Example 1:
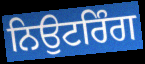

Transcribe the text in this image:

ਨਿਉਟਰਿੰਗ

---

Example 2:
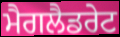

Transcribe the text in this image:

ਮੈਗਲੈਡਰੇਟ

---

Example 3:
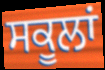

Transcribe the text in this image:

ਸਕੂਲਾਂ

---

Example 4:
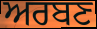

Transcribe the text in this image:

ਅਰਬਣ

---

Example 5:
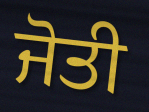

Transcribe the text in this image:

ਜੋਤੀ